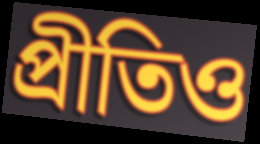
প্রীতিও